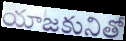
యాజకునితో